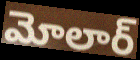
మోలార్